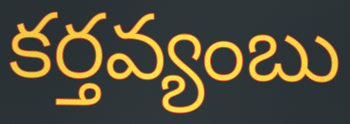
కర్తవ్యంబు